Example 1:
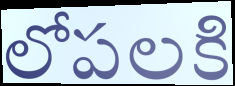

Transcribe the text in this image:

లోపలకి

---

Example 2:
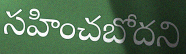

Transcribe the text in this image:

సహించబోదని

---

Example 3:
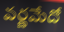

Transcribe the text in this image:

వర్ణమేదో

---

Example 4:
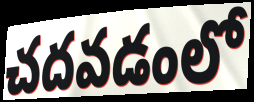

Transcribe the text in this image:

చదవడంలో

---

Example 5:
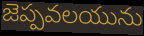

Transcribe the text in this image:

జెప్పవలయును